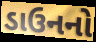
ડાઉનનો